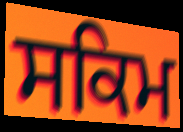
ਸਕਿਮ